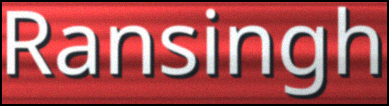
Ransingh